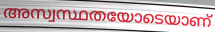
അസ്വസ്ഥതയോടെയാണ്